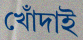
খোঁদাই